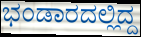
ಭಂಡಾರದಲ್ಲಿದ್ದ